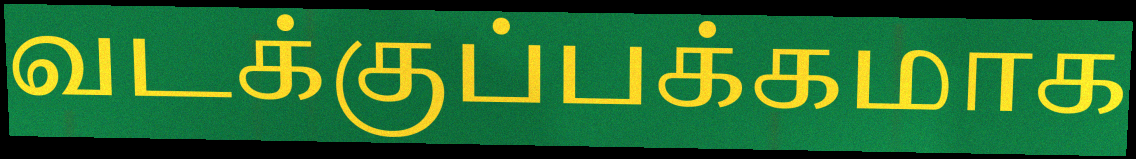
வடக்குப்பக்கமாக